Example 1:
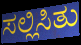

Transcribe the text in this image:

ಸಲ್ಲಿಸಿತು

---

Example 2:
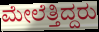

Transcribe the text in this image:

ಮೇಲೆತ್ತಿದ್ದರು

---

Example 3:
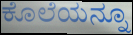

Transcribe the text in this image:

ಕೊಲೆಯನ್ನೂ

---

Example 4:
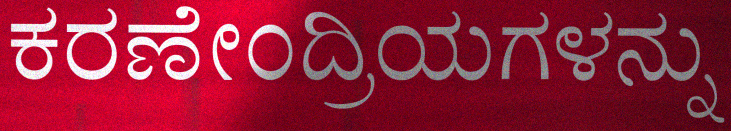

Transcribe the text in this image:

ಕರಣೇಂದ್ರಿಯಗಳನ್ನು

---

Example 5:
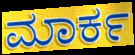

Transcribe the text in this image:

ಮಾರ್ಕ